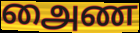
அைண